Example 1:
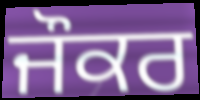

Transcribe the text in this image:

ਜੌਕਰ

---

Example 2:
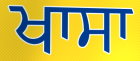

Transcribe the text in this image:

ਖਾਸਾ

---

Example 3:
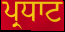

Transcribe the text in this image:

ਪ੍ਰਧਾਟ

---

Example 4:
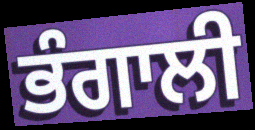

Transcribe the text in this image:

ਭੰਗਾਲੀ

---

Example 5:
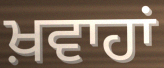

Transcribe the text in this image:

ਖ਼ਵਾਹਾਂ